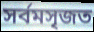
সর্বমসৃজত